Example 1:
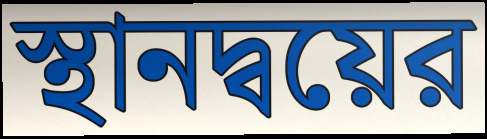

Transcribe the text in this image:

স্থানদ্বয়ের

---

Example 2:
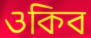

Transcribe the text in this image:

ওকিব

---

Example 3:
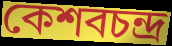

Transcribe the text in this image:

কেশবচন্দ্র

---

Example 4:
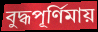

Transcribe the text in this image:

বুদ্ধপূর্ণিমায়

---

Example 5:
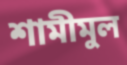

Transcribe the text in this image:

শামীমুল